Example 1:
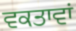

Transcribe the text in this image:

ਵਕਤਾਵਾਂ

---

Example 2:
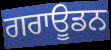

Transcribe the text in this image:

ਗਰਾਊਡਨ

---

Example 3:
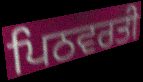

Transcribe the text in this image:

ਪਿਠਵਰਤੀ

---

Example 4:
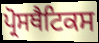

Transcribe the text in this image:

ਪ੍ਰੋਸਥੈਟਿਕਸ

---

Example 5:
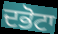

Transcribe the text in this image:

ਦਭੋਟਾ